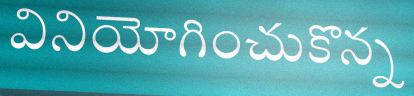
వినియోగించుకొన్న